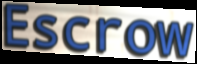
Escrow